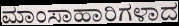
ಮಾಂಸಾಹಾರಿಗಳಾದ